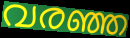
വരഞ്ഞ